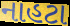
નાહટા